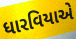
ધારવિયાએ